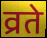
व्रते